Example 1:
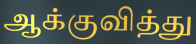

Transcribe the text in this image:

ஆக்குவித்து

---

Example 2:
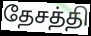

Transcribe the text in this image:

தேசத்தி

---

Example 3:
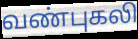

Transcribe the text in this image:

வண்புகலி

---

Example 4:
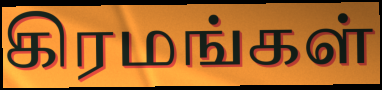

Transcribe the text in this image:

கிரமங்கள்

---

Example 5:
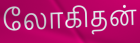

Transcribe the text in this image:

லோகிதன்